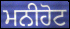
ਮਨੀਹੋਟ